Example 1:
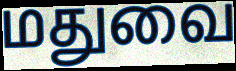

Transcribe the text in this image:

மதுவை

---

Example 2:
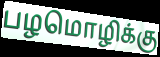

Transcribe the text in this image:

பழமொழிக்கு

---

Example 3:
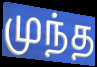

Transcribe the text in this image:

முந்த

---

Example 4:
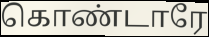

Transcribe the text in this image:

கொண்டாரே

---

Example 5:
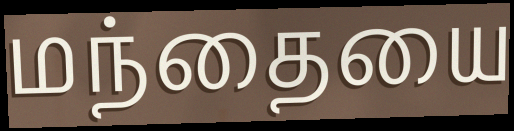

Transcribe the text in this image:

மந்தையை